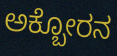
ಅಕ್ಬೋರನ